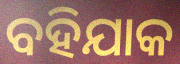
ବହିଯାକ